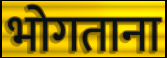
भोगताना